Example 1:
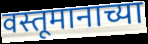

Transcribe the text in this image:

वस्तूमानाच्या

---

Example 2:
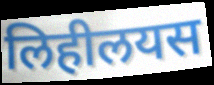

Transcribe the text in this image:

लिहीलयस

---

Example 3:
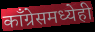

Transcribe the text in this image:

काँग्रेसमध्येही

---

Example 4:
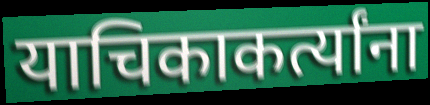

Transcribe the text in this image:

याचिकाकर्त्यांना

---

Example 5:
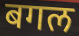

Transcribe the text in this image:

बगल